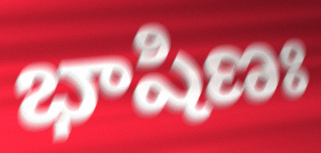
భాషిణః